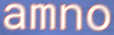
amno